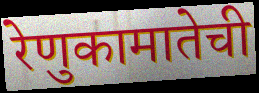
रेणुकामातेची